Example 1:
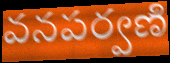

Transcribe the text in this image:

వనపర్వణి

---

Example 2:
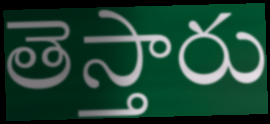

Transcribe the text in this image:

తెస్తారు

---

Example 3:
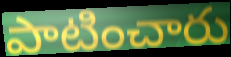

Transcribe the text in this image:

పాటించారు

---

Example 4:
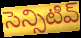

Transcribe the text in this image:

సెన్సిటివ్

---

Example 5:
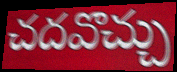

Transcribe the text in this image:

చదవొచ్చు